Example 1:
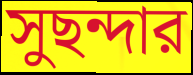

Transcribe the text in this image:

সুছন্দার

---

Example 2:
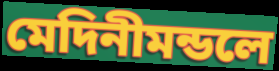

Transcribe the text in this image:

মেদিনীমন্ডলে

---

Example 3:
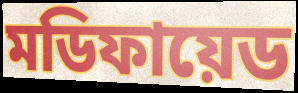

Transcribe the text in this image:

মডিফায়েড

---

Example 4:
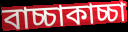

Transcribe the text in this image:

বাচ্চাকাচ্চা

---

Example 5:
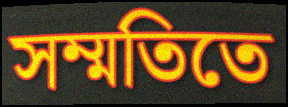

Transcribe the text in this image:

সম্মতিতে